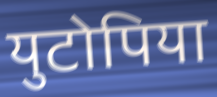
युटोपिया